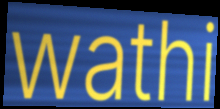
wathi